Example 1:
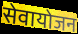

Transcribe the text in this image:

सेवायोजन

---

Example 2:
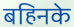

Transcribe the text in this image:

बहिनके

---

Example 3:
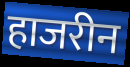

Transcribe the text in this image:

हाजरीन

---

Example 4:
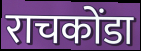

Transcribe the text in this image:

राचकोंडा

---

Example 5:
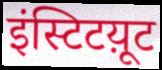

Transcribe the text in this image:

इंस्टिटय़ूट